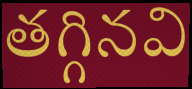
తగ్గినవి